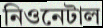
নিওনেটাল